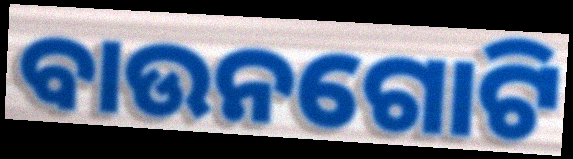
ବାଉନଗୋଟି